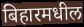
बिहारमधील